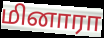
மினாரா